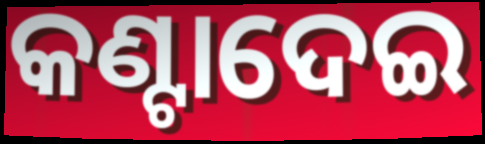
କଣ୍ଟାଦେଇ